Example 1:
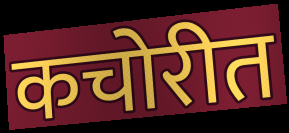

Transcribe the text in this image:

कचोरीत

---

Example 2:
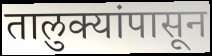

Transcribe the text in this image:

तालुक्यांपासून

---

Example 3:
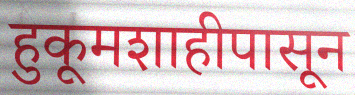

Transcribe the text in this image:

हुकूमशाहीपासून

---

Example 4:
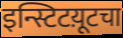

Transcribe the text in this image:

इन्स्टिटय़ूटचा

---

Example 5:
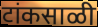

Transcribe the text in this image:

टांकसाळी